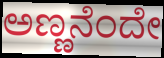
ಅಣ್ಣನೆಂದೇ